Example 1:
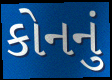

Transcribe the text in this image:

કોનનું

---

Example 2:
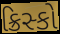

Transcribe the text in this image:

ક્રિસ્કો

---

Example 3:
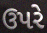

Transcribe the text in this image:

ઉપરે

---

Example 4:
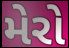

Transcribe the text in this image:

મેરો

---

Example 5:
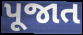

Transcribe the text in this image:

પૂજાત